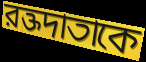
রক্তদাতাকে